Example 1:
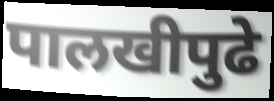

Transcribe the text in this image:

पालखीपुढे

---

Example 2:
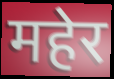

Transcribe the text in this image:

महेर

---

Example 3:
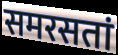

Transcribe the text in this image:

समरसतां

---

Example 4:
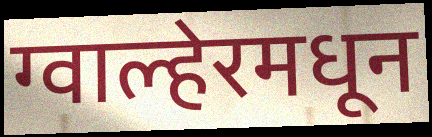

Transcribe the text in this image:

ग्वाल्हेरमधून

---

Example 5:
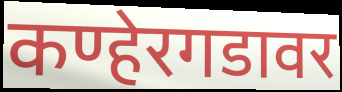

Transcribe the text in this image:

कण्हेरगडावर